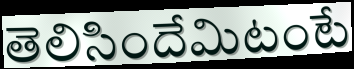
తెలిసిందేమిటంటే